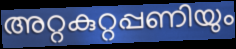
അറ്റകുറ്റപ്പണിയും